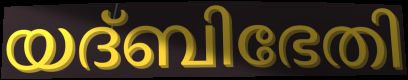
യദ്ബിഭേതി